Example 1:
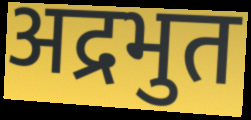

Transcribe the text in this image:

अद्रभुत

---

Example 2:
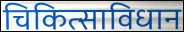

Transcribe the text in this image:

चिकित्साविधान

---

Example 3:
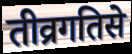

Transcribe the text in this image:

तीव्रगतिसे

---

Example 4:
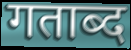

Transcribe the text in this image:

गताब्द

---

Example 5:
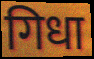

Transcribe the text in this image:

गिधा